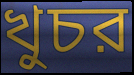
খুচর